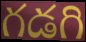
గడగి